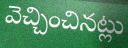
వెచ్చించినట్లు